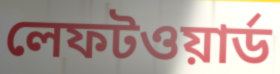
লেফটওয়ার্ড